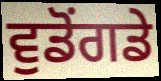
ਵੁਡੋਂਗਡੇ